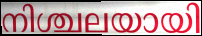
നിശ്ചലയായി